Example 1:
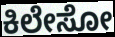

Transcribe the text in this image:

ಕಿಲೇಸೋ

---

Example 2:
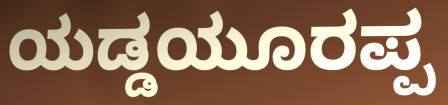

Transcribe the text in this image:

ಯಡ್ಡಯೂರಪ್ಪ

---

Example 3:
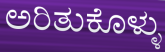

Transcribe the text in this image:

ಅರಿತುಕೊಳ್ಳು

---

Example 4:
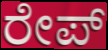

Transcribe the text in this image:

ರೇಪ್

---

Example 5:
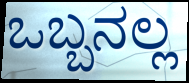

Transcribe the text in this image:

ಒಬ್ಬನಲ್ಲ